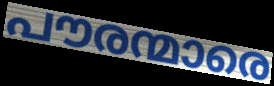
പൗരന്മാരെ